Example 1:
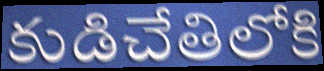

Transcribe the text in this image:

కుడిచేతిలోకి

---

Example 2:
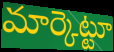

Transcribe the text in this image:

మార్కెట్టూ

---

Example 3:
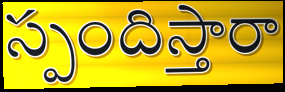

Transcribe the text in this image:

స్పందిస్తారా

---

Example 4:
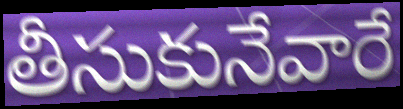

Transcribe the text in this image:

తీసుకునేవారే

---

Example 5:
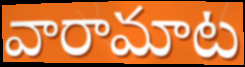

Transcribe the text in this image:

వారామాట